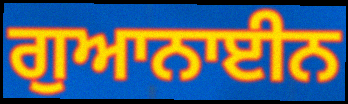
ਗੁਆਨਾਈਨ